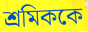
শ্রমিককে